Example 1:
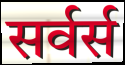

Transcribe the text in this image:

सर्वर्स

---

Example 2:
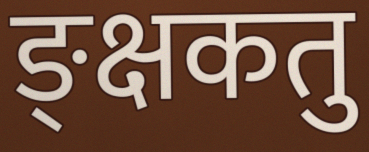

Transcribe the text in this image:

ङ्क्षकतु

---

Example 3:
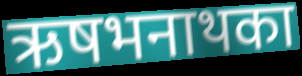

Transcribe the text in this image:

ऋषभनाथका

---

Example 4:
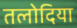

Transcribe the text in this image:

तलोदिया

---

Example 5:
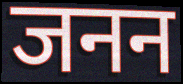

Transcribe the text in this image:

जनन